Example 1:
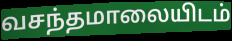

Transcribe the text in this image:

வசந்தமாலையிடம்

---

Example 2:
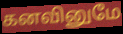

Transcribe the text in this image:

கனவினுமே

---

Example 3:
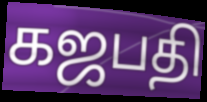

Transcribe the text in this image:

கஜபதி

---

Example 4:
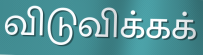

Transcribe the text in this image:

விடுவிக்கக்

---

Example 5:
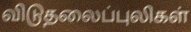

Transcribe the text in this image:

விடுதலைப்புலிகள்